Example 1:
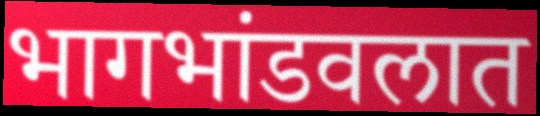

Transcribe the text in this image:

भागभांडवलात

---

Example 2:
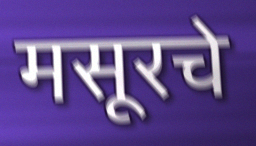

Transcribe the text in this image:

मसूरचे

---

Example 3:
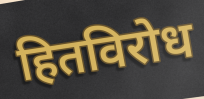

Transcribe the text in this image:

हितविरोध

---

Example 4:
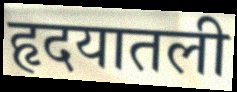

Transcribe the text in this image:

हृदयातली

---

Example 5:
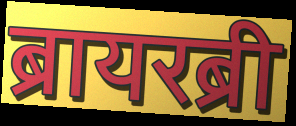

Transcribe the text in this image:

ब्रायरब्री